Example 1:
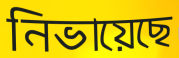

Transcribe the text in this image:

নিভায়েছে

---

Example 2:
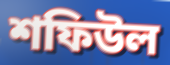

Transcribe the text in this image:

শফিউল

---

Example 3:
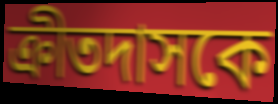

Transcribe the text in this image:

ক্রীতদাসকে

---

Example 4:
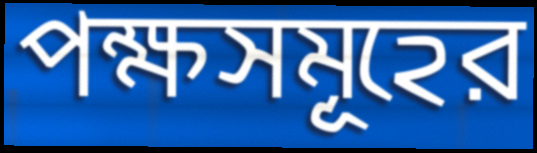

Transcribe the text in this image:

পক্ষসমূহের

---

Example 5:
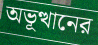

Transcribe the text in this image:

অভূত্থানের